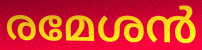
രമേശൻ